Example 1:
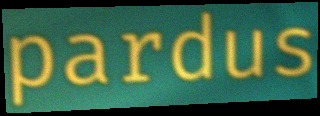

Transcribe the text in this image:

pardus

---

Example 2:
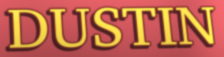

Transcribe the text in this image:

DUSTIN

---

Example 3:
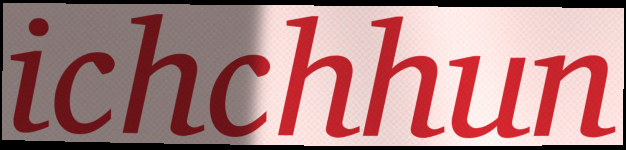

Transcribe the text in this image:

ichchhun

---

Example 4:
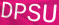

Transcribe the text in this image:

DPSU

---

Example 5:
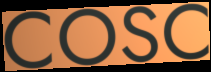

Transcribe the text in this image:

COSC